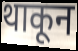
थाकून